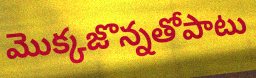
మొక్కజొన్నతోపాటు